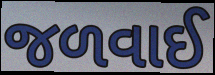
જળવાઈ